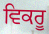
ਵਿਕਰੂ